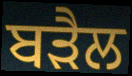
ਬੜੈਲ